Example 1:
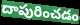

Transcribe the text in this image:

దాపురించడం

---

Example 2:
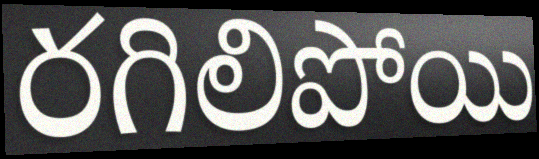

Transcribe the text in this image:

రగిలిపోయి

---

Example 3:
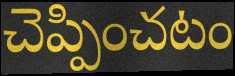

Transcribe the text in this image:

చెప్పించటం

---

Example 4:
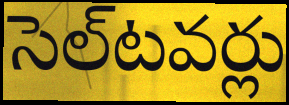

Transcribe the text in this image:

సెల్‌టవర్లు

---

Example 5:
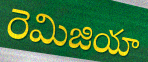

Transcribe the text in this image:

రెమిజియా